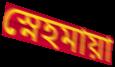
স্নেহমায়া